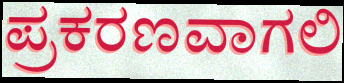
ಪ್ರಕರಣವಾಗಲಿ